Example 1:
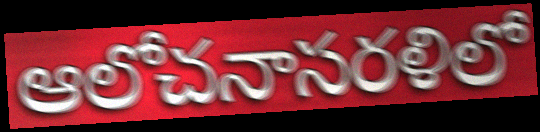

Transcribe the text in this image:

ఆలోచనాసరళిలో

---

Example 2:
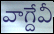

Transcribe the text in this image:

వాగ్దేవీ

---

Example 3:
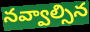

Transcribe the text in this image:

నవ్వాల్సిన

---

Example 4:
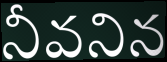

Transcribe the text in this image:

నీవనిన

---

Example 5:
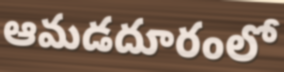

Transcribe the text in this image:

ఆమడదూరంలో